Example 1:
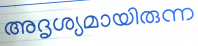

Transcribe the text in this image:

അദൃശ്യമായിരുന്ന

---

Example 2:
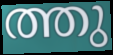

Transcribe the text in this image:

ത്തു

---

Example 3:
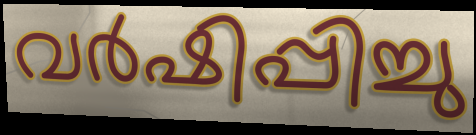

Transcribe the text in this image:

വർഷിപ്പിച്ചു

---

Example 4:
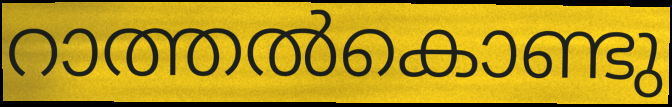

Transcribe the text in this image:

റാത്തൽകൊണ്ടു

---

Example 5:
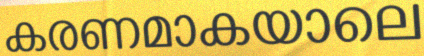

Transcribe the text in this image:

കരണമാകയാലെ